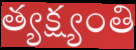
త్యక్ష్యంతి